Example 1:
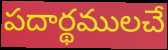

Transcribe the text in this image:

పదార్థములచే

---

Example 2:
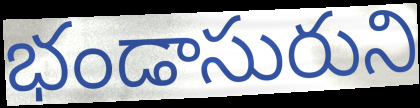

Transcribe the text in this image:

భండాసురుని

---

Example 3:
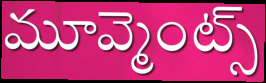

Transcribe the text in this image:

మూవ్మెంట్స్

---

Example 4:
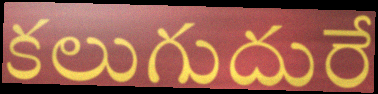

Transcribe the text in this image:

కలుగుదురే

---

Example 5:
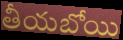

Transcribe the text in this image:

తీయబోయి